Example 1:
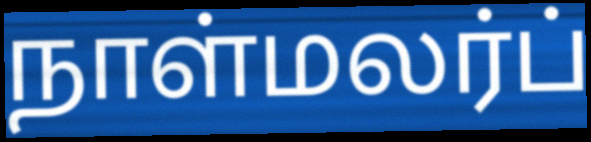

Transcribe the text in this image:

நாள்மலர்ப்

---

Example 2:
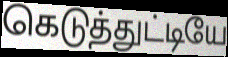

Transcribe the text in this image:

கெடுத்துட்டியே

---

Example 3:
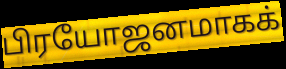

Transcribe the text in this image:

பிரயோஜனமாகக்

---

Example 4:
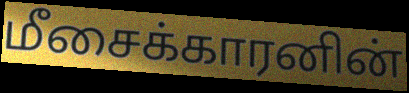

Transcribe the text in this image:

மீசைக்காரனின்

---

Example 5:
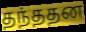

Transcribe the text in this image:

தந்ததன